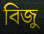
বিজু